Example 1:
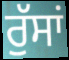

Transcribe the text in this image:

ਰੁੱਸਾਂ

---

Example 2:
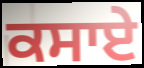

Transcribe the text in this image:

ਕਸਾਏ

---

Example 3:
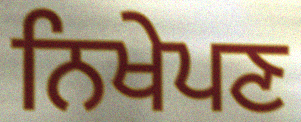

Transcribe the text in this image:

ਨਿਖੇਪਣ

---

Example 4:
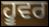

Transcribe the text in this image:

ਹੂਵਰ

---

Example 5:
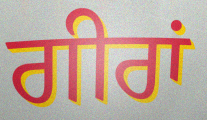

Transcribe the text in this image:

ਗੀਰਾਂ